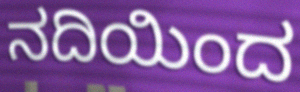
ನದಿಯಿಂದ